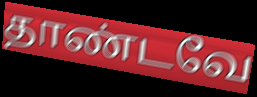
தாண்டவே